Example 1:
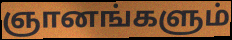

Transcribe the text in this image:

ஞானங்களும்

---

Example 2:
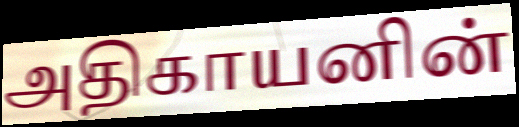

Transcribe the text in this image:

அதிகாயனின்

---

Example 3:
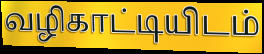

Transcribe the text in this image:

வழிகாட்டியிடம்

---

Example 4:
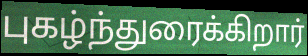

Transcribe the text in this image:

புகழ்ந்துரைக்கிறார்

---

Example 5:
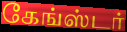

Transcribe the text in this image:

கேங்ஸ்டர்